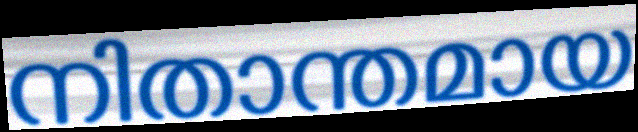
നിതാന്തമായ